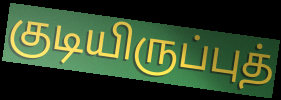
குடியிருப்புத்